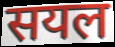
सयल